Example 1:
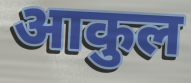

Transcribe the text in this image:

आकुल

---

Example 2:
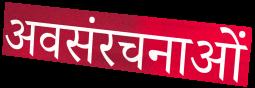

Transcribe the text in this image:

अवसंरचनाओं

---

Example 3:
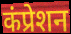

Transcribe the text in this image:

कंप्रेशन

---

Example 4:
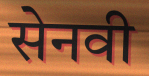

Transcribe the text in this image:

सेनवी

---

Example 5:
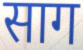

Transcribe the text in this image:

साग